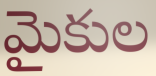
మైకుల